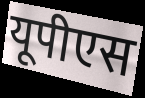
यूपीएस